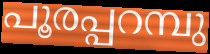
പൂരപ്പറമ്പു